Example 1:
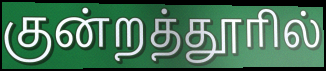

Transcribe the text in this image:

குன்றத்தூரில்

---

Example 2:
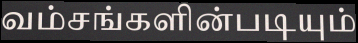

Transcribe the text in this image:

வம்சங்களின்படியும்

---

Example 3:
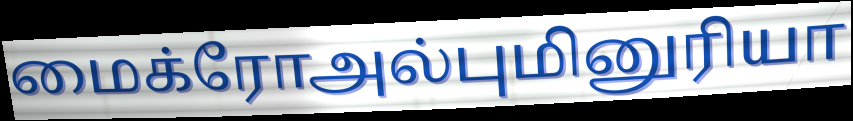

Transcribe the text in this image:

மைக்ரோஅல்புமினுரியா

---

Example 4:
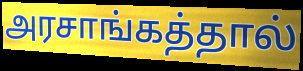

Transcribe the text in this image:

அரசாங்கத்தால்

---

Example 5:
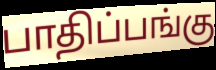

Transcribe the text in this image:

பாதிப்பங்கு